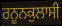
ਰਨੂਨਕੁਲਾਸੀ